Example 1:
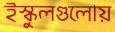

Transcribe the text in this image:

ইস্কুলগুলোয়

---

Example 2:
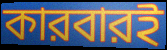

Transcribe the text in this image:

কারবারই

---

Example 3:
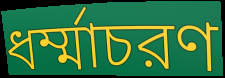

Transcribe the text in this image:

ধর্ম্মাচরণ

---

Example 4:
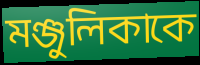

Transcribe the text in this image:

মঞ্জুলিকাকে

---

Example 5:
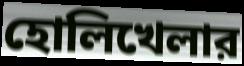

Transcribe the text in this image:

হোলিখেলার